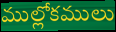
ముల్లోకములు